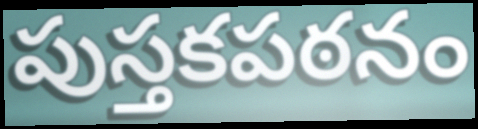
పుస్తకపఠనం